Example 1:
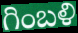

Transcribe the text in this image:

గింబళి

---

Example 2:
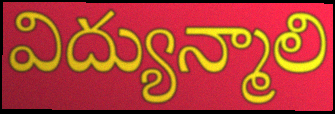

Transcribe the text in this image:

విద్యున్మాలి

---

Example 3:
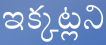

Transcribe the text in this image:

ఇక్కట్లని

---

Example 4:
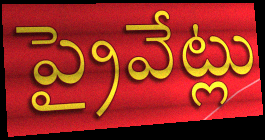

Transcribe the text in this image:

ప్రైవేట్లు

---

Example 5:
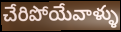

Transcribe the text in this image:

చేరిపోయేవాళ్ళు